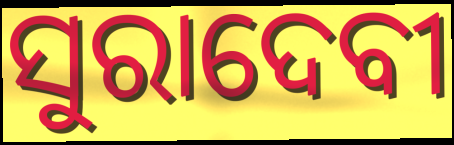
ସୁରାଦେବୀ